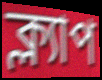
ক্ল্যাপ